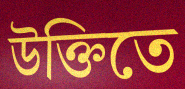
উক্তিতে